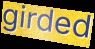
girded